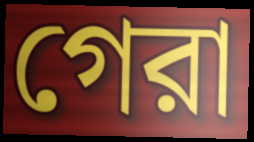
গেরা